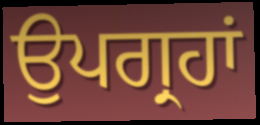
ਉਪਗ੍ਰਹਾਂ